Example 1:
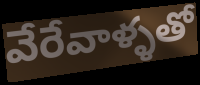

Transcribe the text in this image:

వేరేవాళ్ళతో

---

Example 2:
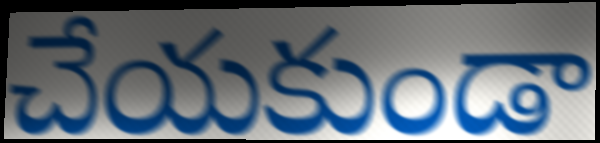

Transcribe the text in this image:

చేయకుండా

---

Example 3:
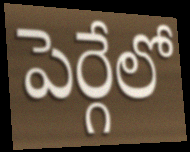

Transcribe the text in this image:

పెర్గేలో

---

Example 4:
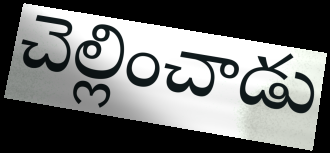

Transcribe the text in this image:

చెల్లించాడు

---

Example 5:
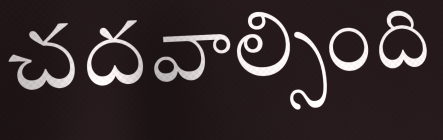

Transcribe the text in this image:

చదవాల్సింది